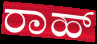
ರಾಹ್